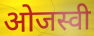
ओजस्वी